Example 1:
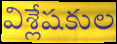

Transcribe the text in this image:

విశ్లేషకుల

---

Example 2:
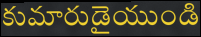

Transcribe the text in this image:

కుమారుడైయుండి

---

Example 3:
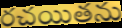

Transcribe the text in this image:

రచయితను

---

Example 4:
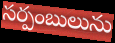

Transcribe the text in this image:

సర్పంబులును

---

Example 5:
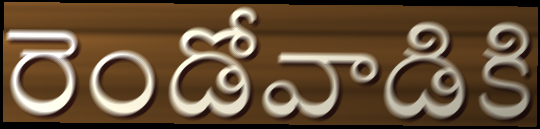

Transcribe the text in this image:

రెండోవాడికి